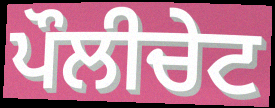
ਪੌਲੀਚੇਟ